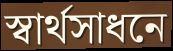
স্বার্থসাধনে